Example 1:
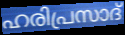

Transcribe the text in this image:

ഹരിപ്രസാദ്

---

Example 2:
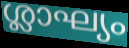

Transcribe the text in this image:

ശ്ലാഘ്യം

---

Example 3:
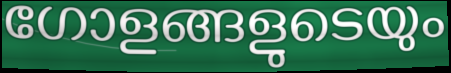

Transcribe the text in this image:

ഗോളങ്ങളുടെയും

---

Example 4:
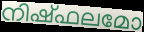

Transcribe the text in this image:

നിഷ്ഫലമോ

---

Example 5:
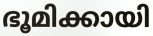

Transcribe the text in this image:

ഭൂമിക്കായി